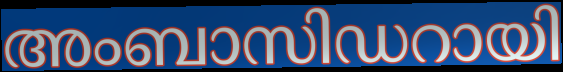
അംബാസിഡറായി